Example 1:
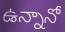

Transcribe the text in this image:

ఉన్నానో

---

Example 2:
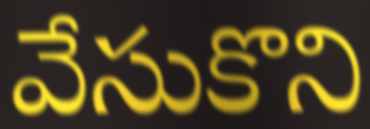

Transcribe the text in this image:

వేసుకొని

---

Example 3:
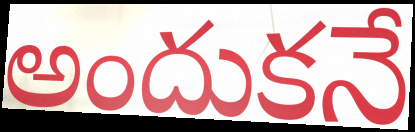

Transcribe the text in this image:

అందుకనే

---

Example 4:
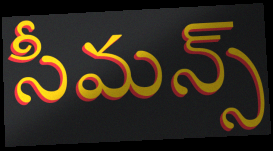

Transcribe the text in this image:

సీమన్స్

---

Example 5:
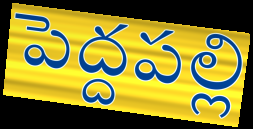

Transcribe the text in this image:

పెద్దపల్లి